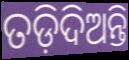
ତଡ଼ିଦିଅନ୍ତି